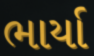
ભાર્યા